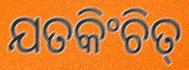
ଯତକିଂଚିତ୍